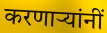
करणार्‍यांनीं